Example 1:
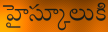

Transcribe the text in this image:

హైస్కూలుకి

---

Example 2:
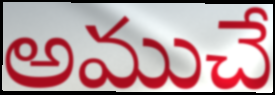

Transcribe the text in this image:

అముచే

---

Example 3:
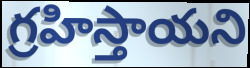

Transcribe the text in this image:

గ్రహిస్తాయని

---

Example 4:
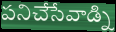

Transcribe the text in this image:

పనిచేసేవాడ్ని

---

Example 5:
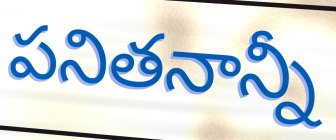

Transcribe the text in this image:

పనితనాన్నీ